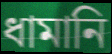
ধামানি